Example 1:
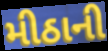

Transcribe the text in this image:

મીઠાની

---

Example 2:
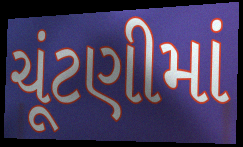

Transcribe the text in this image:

ચૂંટણીમાં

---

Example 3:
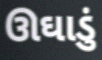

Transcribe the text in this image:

ઊઘાડું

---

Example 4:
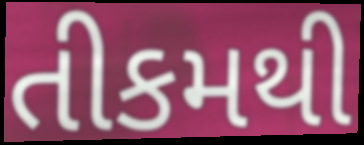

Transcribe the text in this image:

તીકમથી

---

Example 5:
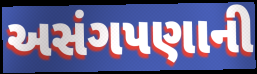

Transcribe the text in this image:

અસંગપણાની